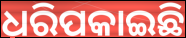
ଧରିପକାଇଛି